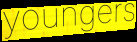
youngers